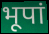
भूपां